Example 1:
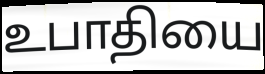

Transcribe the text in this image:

உபாதியை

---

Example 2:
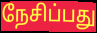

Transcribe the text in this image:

நேசிப்பது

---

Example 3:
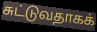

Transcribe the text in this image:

சுட்டுவதாகக்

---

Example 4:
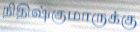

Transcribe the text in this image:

நிதிஷ்குமாருக்கு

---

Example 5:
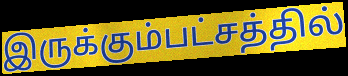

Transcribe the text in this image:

இருக்கும்பட்சத்தில்